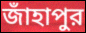
জাঁহাপুর